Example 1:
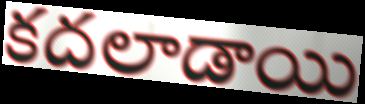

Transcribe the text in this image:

కదలాడాయి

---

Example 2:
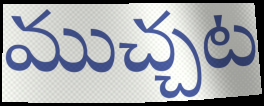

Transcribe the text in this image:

ముచ్చట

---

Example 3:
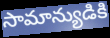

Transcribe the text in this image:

సామాన్యుడికి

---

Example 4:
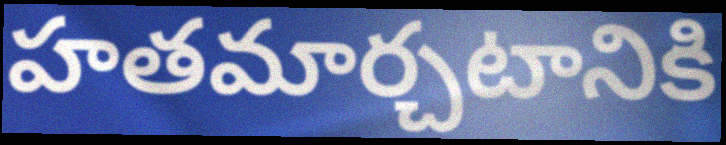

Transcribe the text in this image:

హతమార్చటానికి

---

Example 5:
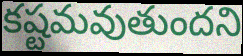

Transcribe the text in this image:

కష్టమవుతుందని